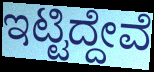
ಇಟ್ಟಿದ್ದೇವೆ